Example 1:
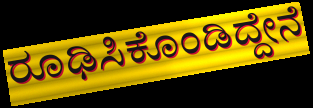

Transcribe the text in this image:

ರೂಢಿಸಿಕೊಂಡಿದ್ದೇನೆ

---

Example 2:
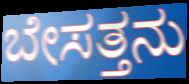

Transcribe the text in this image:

ಬೇಸತ್ತನು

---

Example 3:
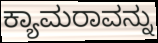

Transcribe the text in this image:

ಕ್ಯಾಮರಾವನ್ನು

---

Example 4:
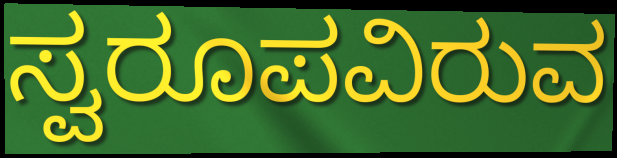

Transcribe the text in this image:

ಸ್ವರೂಪವಿರುವ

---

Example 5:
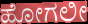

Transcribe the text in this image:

ಹೋಗಲೀ